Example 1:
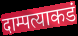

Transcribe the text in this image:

दाम्पत्याकडं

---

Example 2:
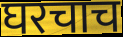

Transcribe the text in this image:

घरचाच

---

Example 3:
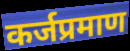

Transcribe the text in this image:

कर्जप्रमाण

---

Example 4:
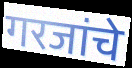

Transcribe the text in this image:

गरजांचे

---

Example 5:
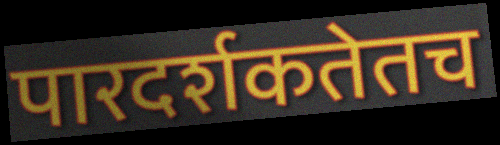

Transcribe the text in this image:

पारदर्शकतेतच